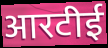
आरटीई